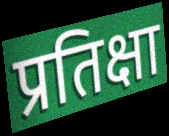
प्रतिक्षा